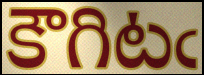
కౌగిటఁ